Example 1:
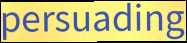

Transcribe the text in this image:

persuading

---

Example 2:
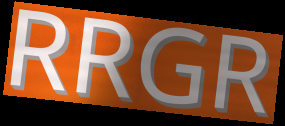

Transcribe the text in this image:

RRGR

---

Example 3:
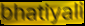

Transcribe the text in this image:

bhatiyali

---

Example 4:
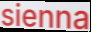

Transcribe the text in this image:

sienna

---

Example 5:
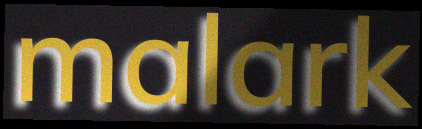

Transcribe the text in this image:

malark